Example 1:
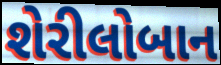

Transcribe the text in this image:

શેરીલોબાન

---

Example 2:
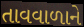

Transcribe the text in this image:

તાવવાળાને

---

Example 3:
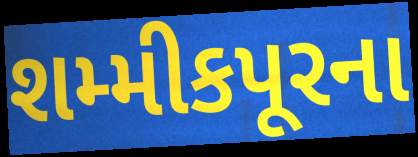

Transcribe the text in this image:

શમ્મીકપૂરના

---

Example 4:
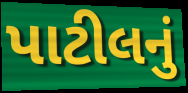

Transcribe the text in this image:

પાટીલનું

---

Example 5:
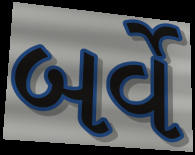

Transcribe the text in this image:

બર્વે